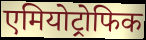
एमियोट्रोफिक